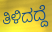
ತಿಳಿದದ್ದೆ